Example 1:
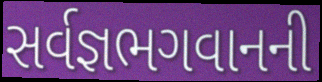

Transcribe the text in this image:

સર્વજ્ઞભગવાનની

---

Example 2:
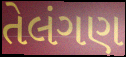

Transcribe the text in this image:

તેલંગણ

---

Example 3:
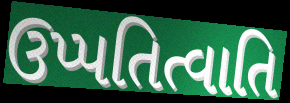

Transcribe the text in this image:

ઉપ્પતિત્વાતિ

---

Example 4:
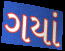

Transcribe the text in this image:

ગયાં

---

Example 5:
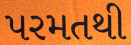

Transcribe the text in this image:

પરમતથી